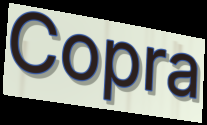
Copra